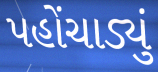
પહોંચાડ્યું